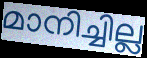
മാനിച്ചില്ല